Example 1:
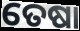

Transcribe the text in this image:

ତେଷା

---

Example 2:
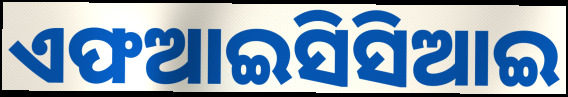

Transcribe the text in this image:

ଏଫଆଇସିସିଆଇ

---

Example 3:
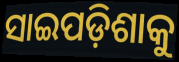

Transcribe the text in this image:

ସାଇପଡ଼ିଶାକୁ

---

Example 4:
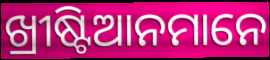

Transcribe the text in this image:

ଖ୍ରୀଷ୍ଟିଆନମାନେ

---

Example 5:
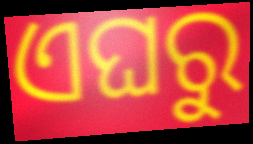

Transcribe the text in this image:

ଏଘରୁ